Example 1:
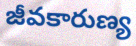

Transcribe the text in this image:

జీవకారుణ్య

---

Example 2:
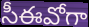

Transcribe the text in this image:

సీఈవోగా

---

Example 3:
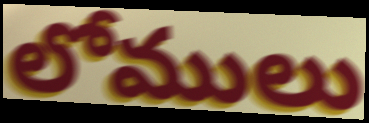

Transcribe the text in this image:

లోములు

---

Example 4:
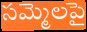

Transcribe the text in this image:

సమ్మెలపై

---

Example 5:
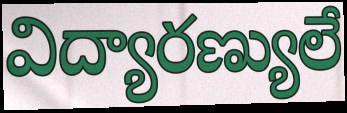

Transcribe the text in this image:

విద్యారణ్యులే